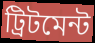
ট্রিটমেন্ট